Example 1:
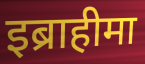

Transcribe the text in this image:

इब्राहीमा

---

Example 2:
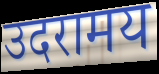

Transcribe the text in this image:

उदरामय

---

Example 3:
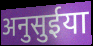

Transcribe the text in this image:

अनुसुईया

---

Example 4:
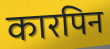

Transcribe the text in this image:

कारपिन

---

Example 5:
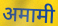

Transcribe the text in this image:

अमामी